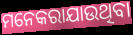
ମନେକରାଯାଉଥିବା